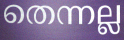
തെന്നല്ല